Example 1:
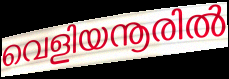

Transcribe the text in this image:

വെളിയനൂരിൽ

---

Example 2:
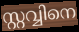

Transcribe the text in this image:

സ്റ്റവ്വിനെ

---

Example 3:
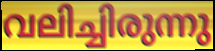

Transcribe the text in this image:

വലിച്ചിരുന്നു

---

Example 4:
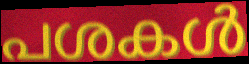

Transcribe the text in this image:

പശകൾ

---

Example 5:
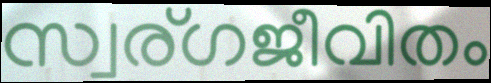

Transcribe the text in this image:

സ്വര്ഗജീവിതം